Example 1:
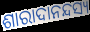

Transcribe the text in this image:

ଶାରାଦାନନ୍ଦସ୍ୟ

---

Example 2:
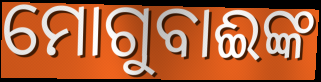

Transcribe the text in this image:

ମୋଗୁବାଈଙ୍କ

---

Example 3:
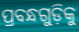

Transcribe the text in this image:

ପ୍ରବନ୍ଧଗୁଡ଼ିକୁ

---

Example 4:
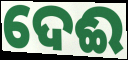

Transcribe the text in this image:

ଦେଈ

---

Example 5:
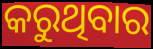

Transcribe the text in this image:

କରୁଥିବାର